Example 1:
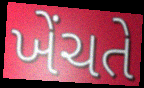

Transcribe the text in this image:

ખેંચતે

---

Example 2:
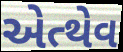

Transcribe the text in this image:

એત્થેવ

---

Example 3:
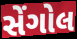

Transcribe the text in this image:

સેંગોલ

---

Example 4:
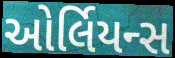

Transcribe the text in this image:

ઓર્લિયન્સ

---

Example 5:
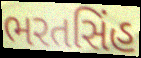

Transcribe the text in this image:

ભરતસિંહ